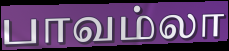
பாவம்லா